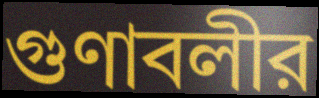
গুণাবলীর